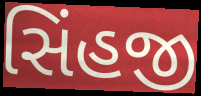
સિંહજી